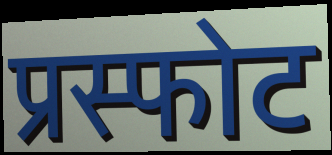
प्रस्फोट